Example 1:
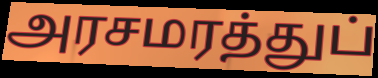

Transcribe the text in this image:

அரசமரத்துப்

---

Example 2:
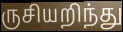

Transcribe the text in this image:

ருசியறிந்து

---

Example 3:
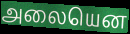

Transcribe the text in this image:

அலையென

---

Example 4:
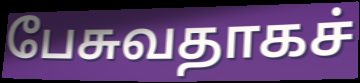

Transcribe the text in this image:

பேசுவதாகச்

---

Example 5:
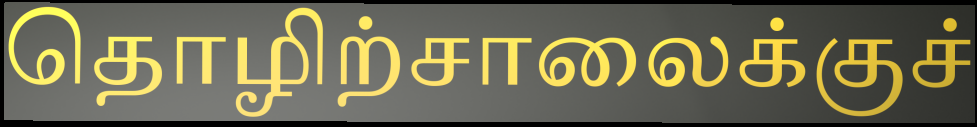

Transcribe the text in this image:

தொழிற்சாலைக்குச்